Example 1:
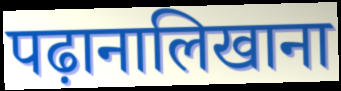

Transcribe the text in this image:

पढ़ानालिखाना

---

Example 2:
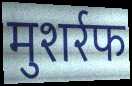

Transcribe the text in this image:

मुशर्रफ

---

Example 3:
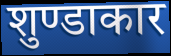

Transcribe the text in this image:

शुण्डाकार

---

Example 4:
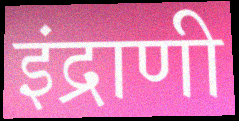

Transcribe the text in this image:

इंद्राणी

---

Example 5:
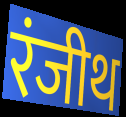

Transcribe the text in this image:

रंजीथ